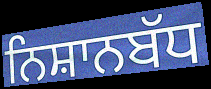
ਨਿਸ਼ਾਨਬੱਧ